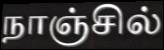
நாஞ்சில்